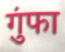
गुंफा